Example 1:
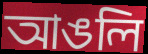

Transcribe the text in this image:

আঙলি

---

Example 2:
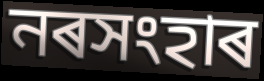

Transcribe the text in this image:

নৰসংহাৰ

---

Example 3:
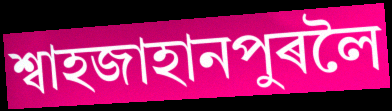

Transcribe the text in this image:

শ্বাহজাহানপুৰলৈ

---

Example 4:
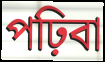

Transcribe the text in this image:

পঢ়িবা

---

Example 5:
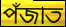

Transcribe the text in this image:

পঁজাত